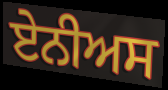
ਏਨੀਅਸ